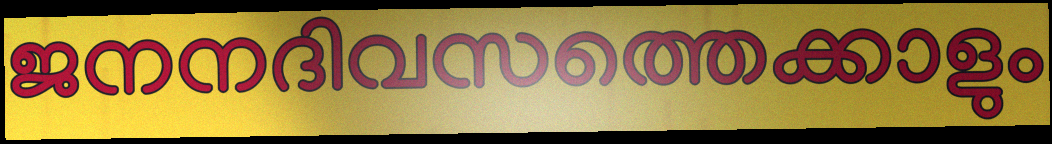
ജനനദിവസത്തെക്കാളും